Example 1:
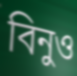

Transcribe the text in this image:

বিনুও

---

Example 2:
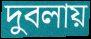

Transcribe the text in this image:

দুবলায়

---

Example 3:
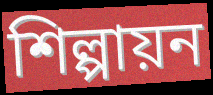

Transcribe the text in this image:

শিল্পায়ন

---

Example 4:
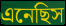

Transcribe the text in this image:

এনেছিস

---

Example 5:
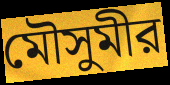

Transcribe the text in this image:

মৌসুমীর